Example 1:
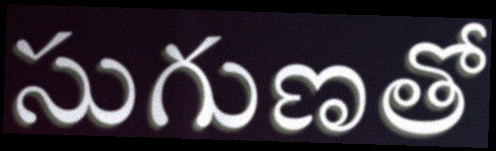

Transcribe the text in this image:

సుగుణతో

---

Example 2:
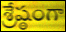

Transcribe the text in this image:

శ్రేష్ఠంగా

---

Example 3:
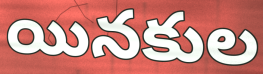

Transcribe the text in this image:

యినకుల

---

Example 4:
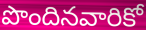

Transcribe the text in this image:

పొందినవారికో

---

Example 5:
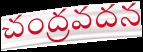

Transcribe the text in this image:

చంద్రవదన